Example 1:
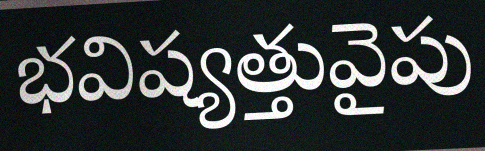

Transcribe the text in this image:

భవిష్యత్తువైపు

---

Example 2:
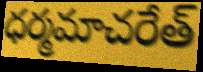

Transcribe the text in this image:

ధర్మమాచరేత్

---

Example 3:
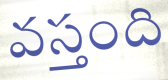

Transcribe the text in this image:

వస్తంది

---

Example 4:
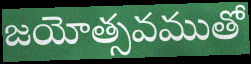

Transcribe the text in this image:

జయోత్సవముతో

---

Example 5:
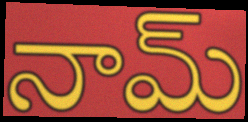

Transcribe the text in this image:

నామ్